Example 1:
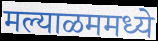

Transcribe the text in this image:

मल्याळममध्ये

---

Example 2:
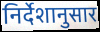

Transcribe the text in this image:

निर्देशानुसार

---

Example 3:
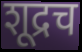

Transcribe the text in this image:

शूद्रच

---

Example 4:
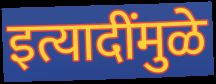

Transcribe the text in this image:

इत्यादींमुळे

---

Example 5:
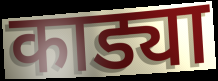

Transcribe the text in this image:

काड्या